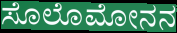
ಸೊಲೊಮೋನನ